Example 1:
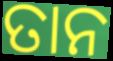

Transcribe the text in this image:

ତାନ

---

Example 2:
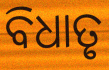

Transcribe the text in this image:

ବିଧାତୃ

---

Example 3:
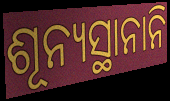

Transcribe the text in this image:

ଶୂନ୍ୟସ୍ଥାନାନି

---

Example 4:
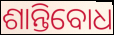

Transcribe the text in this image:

ଶାନ୍ତିବୋଧ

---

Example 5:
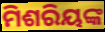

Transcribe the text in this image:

ମିଶରିୟଙ୍କ